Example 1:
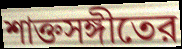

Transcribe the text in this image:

শাক্তসঙ্গীতের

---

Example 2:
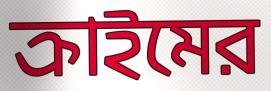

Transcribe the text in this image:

ক্রাইমের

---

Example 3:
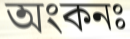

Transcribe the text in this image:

অংকনঃ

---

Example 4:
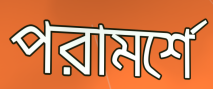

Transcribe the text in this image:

পরামর্শে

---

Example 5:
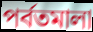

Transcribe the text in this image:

পর্বতমালা